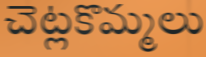
చెట్లకొమ్మలు